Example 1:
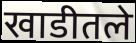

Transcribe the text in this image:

खाडीतले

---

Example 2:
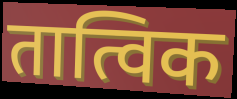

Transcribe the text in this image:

तात्विक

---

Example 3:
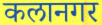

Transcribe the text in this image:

कलानगर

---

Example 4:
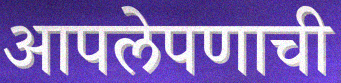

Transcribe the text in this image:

आपलेपणाची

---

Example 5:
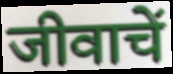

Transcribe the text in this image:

जीवाचें